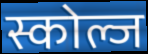
स्कोल्ज